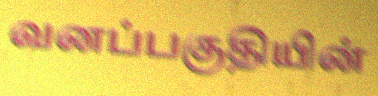
வனப்பகுதியின்